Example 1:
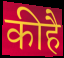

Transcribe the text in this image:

कीहै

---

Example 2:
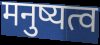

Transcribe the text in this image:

मनुष्यत्‍व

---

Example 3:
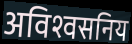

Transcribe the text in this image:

अविश्वसनिय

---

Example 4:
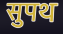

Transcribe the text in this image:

सुपथ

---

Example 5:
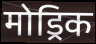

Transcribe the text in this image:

मोड्रिक